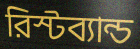
রিস্টব্যান্ড